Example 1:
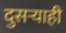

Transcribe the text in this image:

दुसऱ्याही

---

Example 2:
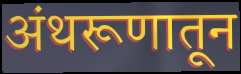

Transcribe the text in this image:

अंथरूणातून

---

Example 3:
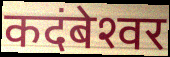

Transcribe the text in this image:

कदंबेश्वर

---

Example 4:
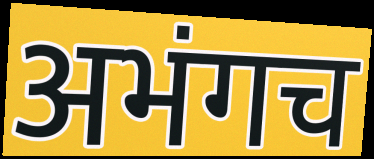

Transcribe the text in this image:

अभंगच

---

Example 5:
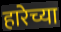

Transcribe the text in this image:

हारेच्या